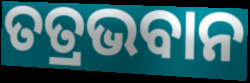
ତତ୍ରଭବାନ